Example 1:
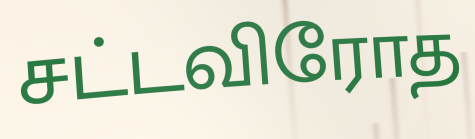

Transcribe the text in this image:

சட்டவிரோத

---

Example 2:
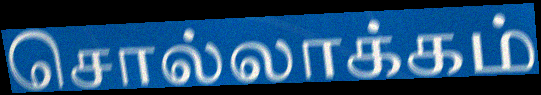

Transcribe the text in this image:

சொல்லாக்கம்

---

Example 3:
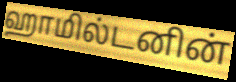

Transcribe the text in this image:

ஹாமில்டனின்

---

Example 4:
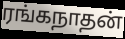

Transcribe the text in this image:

ரங்கநாதன்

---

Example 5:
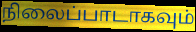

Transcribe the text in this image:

நிலைப்பாடாகவும்